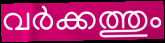
വർക്കത്തും